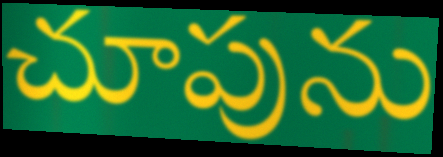
చూపును